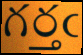
గర్తఁ